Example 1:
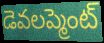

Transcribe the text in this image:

డెవలప్మెంట్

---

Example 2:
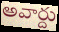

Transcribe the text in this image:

అవార్దు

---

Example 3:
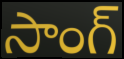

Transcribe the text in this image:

సాంగ్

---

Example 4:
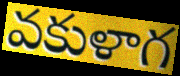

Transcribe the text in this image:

వకుళాగ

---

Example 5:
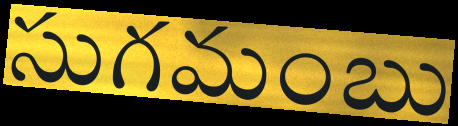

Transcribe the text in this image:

సుగమంబు